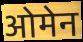
ओमेन